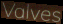
Valves